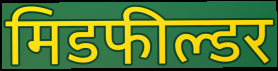
मिडफील्डर